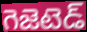
గెజెటెడ్